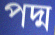
পদ্ম